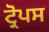
ਟ੍ਰੋਪਸ